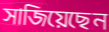
সাজিয়েছেন